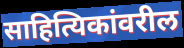
साहित्यिकांवरील